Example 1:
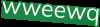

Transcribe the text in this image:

wweewq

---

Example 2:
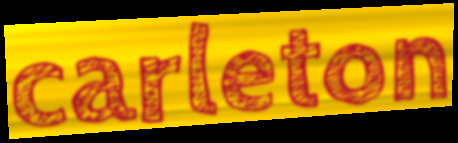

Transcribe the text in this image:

carleton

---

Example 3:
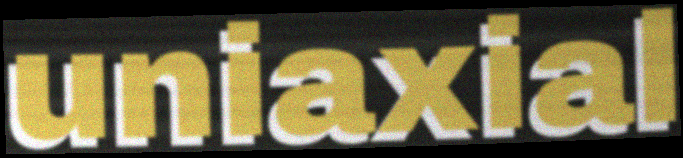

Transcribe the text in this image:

uniaxial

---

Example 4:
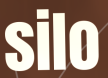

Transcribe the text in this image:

silo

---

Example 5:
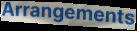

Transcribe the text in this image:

Arrangements